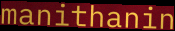
manithanin